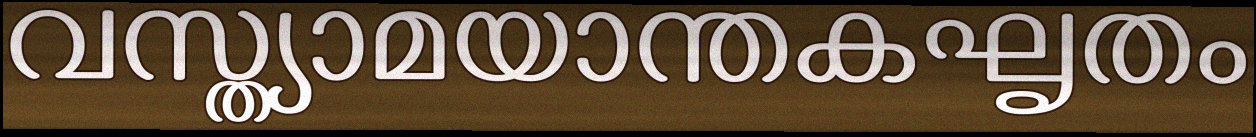
വസ്ത്യാമയാന്തകഘൃതം